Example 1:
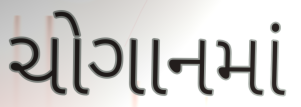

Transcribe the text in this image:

ચોગાનમાં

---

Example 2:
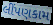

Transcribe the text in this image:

લીંપણકામ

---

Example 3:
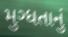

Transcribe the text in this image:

મુગ્ધતાનું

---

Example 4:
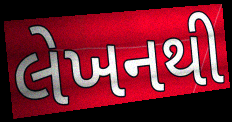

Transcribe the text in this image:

લેખનથી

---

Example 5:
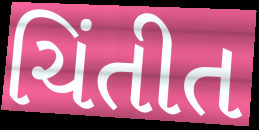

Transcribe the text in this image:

ચિંતીત